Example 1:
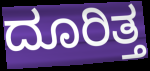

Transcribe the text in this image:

ದೂರಿತ್ತ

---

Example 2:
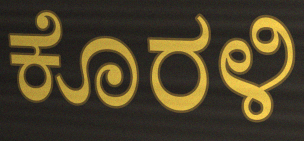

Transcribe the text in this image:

ಕೊರಳಿ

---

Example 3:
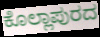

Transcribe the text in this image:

ಕೊಲ್ಲಾಪುರದ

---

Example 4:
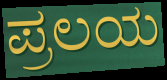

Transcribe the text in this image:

ಪ್ರಲಯ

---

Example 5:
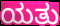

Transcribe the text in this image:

ಯತು